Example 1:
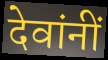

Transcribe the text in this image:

देवांनीं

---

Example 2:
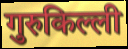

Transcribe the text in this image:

गुरुकिल्ली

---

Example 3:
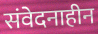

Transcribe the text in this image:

संवेदनाहीन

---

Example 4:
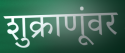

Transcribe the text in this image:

शुक्राणूंवर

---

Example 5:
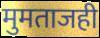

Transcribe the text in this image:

मुमताजही